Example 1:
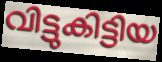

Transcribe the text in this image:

വിട്ടുകിട്ടിയ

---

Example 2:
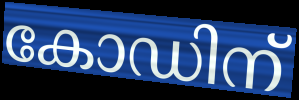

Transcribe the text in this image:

കോഡിന്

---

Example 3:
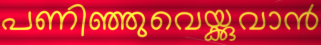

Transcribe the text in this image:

പണിഞ്ഞുവെയ്ക്കുവാൻ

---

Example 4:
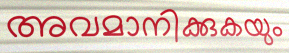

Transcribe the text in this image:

അവമാനിക്കുകയും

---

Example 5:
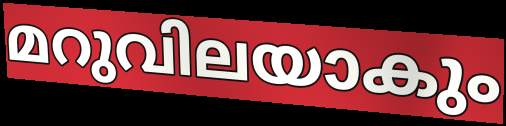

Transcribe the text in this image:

മറുവിലയാകും